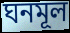
ঘনমূল